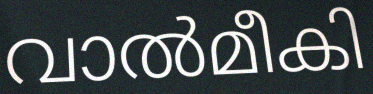
വാൽമീകി